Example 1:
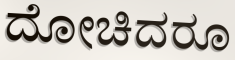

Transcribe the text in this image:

ದೋಚಿದರೂ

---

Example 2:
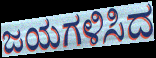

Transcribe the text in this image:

ಜಯಗಳಿಸಿದ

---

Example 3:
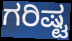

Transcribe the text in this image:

ಗರಿಷ್ಟ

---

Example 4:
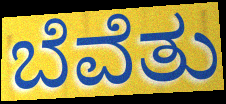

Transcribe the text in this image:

ಬೆವೆತು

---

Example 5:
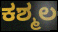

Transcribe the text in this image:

ಕಶ್ಮಲ